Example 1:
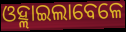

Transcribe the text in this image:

ଓହ୍ଲାଇଲାବେଳେ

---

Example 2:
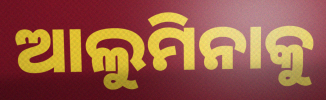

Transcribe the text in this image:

ଆଲୁମିନାକୁ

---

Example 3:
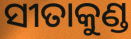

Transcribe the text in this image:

ସୀତାକୁଣ୍ଡ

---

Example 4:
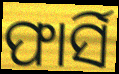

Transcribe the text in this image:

ଫାର୍ସି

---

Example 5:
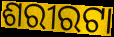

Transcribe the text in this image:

ଶରୀରଟା